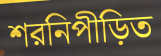
শরনিপীড়িত